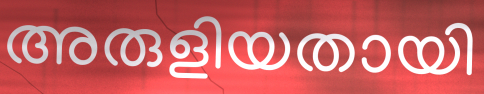
അരുളിയതായി